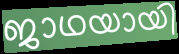
ജാഥയായി